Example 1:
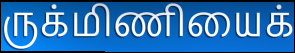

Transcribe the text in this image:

ருக்மிணியைக்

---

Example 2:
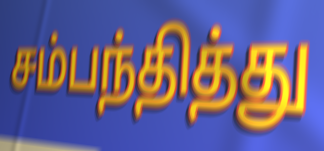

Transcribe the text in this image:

சம்பந்தித்து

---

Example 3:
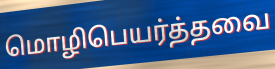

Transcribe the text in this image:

மொழிபெயர்த்தவை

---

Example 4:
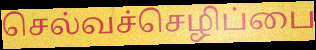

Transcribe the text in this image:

செல்வச்செழிப்பை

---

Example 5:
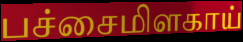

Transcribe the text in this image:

பச்சைமிளகாய்